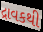
દ્રાવકથી